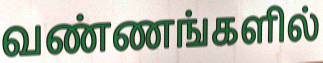
வண்ணங்களில்